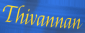
Thivannan